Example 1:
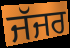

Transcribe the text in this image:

ਜੱਜਰ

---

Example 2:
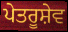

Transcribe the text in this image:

ਪੇਤਰੂਸ਼ੇਵ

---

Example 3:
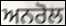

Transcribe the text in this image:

ਅਨਰੋਲ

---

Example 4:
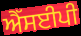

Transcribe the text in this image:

ਐੱਸਈਪੀ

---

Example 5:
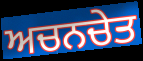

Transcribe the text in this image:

ਅਚਨਚੇਤ